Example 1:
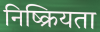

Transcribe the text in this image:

निष्क्रियता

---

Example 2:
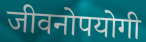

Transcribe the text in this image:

जीवनोपयोगी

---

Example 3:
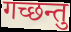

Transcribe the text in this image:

गच्छन्तु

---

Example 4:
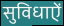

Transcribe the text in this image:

सुविधाऐं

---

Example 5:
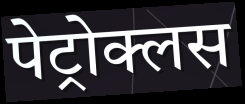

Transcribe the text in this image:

पेट्रोक्लस